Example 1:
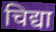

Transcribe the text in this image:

चिद्या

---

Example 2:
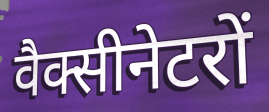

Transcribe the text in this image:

वैक्सीनेटरों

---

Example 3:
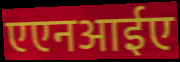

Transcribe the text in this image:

एएनआईए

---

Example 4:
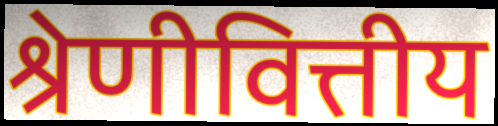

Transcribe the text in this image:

श्रेणीवित्तीय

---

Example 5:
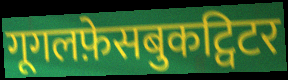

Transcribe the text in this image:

गूगलफ़ेसबुकट्विटर